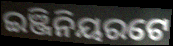
ଇଞ୍ଜିନିୟରଟେ